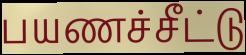
பயணச்சீட்டு